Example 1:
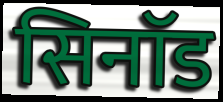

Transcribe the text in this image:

सिनॉड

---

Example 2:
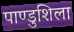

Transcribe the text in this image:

पाण्डुशिला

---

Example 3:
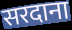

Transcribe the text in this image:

सरदाना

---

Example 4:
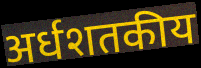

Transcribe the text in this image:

अर्धशतकीय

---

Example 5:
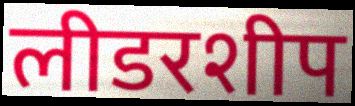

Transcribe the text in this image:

लीडरशीप